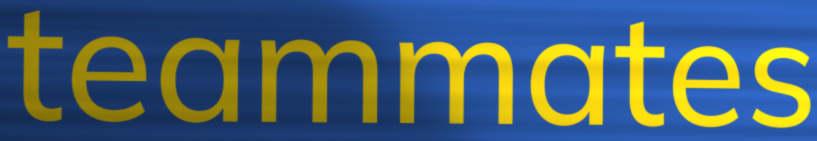
teammates